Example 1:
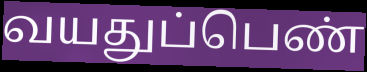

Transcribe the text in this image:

வயதுப்பெண்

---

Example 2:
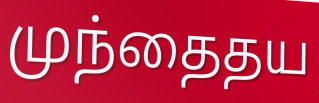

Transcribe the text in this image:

முந்தைதய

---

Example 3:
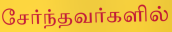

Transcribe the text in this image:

சேர்ந்தவர்களில்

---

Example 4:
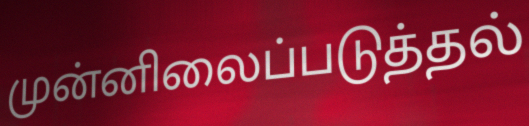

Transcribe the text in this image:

முன்னிலைப்படுத்தல்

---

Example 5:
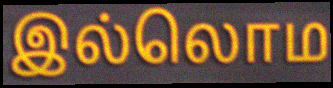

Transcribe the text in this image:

இல்லொம